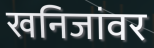
खनिजांवर